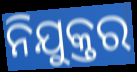
ନିଯୁକ୍ତର